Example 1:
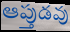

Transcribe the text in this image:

ఆప్తుడవు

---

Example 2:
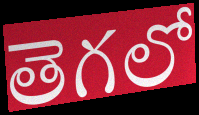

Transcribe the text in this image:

తెగలో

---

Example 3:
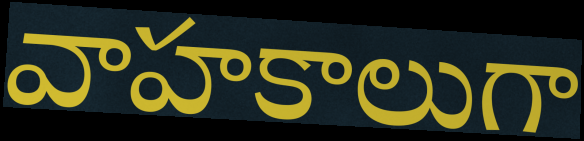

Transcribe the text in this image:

వాహకాలుగా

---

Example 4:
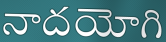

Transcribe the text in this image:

నాదయోగి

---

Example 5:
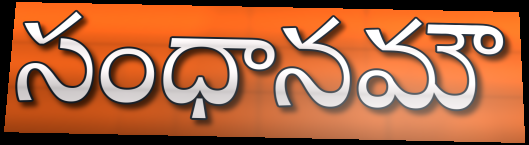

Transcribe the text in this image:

సంధానమౌ